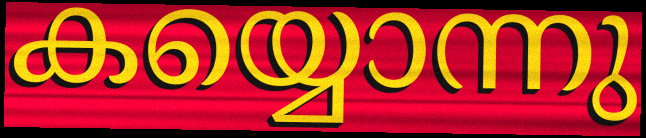
കയ്യൊന്നു